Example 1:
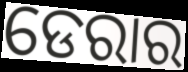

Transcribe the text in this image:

ଡେରାର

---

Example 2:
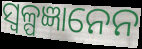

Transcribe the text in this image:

ସ୍ଵଳ୍ପଜ୍ଞାନେନ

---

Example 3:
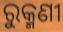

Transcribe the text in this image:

ରୁକ୍ମଣୀ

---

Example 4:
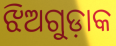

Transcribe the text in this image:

ଝିଅଗୁଡ଼ାକ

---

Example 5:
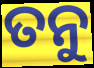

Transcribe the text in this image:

ତନୁ